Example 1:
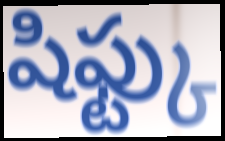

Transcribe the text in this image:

షిఫ్ట్కు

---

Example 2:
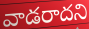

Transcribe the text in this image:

వాడరాదని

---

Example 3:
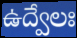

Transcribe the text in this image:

ఉద్వేలః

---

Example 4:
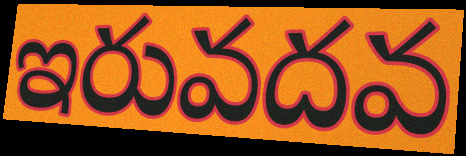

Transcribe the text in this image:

ఇరువదవ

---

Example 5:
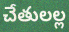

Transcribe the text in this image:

చేతులల్ల